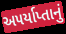
અપર્યાપ્તાનું